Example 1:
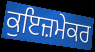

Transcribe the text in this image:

ਕੁਇਜ਼ਮੇਕਰ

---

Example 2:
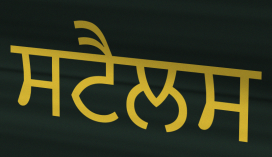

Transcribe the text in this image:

ਸਟੈਲਸ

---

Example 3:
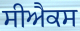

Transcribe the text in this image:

ਸੀਐਕਸ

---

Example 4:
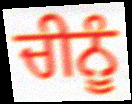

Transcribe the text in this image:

ਚੀਨੂੰ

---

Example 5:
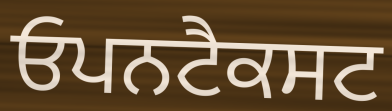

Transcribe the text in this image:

ਓਪਨਟੈਕਸਟ